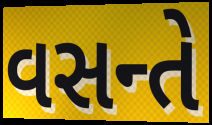
વસન્તે